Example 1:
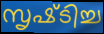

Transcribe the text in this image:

സൃഷ്‌ടിച്ച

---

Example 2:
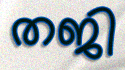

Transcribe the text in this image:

തജി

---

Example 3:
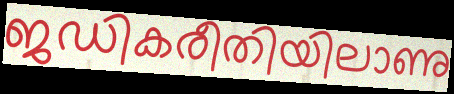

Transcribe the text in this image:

ജഡികരീതിയിലാണു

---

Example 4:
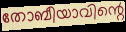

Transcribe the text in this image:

തോബീയാവിന്റെ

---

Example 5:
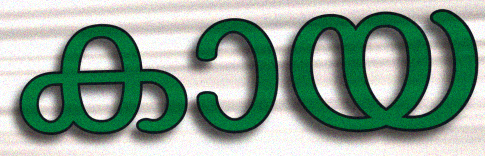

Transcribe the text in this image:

കായ